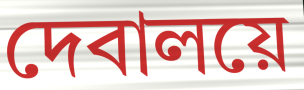
দেবালয়ে